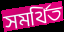
সমৰ্থিত